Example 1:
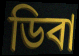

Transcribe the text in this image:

ডিবা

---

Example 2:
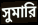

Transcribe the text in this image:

সুমারি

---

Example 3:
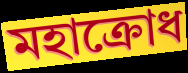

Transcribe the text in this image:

মহাক্রোধ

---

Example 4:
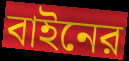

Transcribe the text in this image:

বাইনের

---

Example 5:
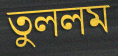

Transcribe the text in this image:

তুললম